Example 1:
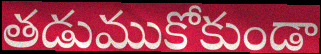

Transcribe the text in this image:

తడుముకోకుండా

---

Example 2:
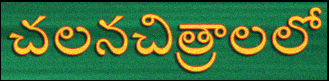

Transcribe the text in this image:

చలనచిత్రాలలో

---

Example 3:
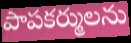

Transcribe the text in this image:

పాపకర్ములను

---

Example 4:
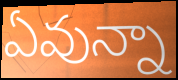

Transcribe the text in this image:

ఏవున్నా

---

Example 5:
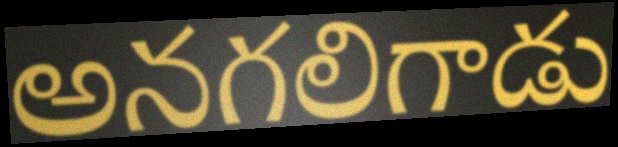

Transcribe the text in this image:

అనగలిగాడు